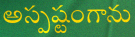
అస్పష్టంగాను